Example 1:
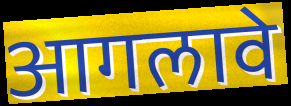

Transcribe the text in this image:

आगलावे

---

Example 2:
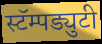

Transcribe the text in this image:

स्टॅम्पड्युटी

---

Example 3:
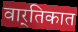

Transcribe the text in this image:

वार्तिकात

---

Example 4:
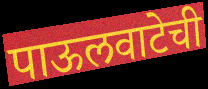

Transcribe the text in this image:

पाऊलवाटेची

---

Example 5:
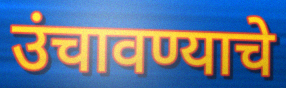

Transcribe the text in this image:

उंचावण्याचे